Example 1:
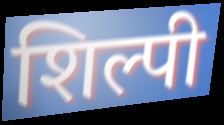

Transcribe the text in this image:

शिल्पी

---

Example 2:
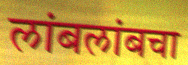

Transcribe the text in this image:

लांबलांबचा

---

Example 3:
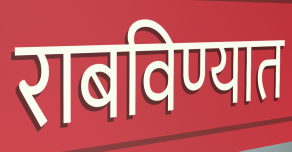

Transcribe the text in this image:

राबविण्‍यात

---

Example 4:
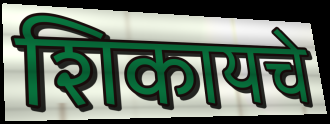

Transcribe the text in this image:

शिकायचे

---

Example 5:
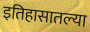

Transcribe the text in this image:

इतिहासातल्या